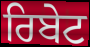
ਰਿਬੇਟ